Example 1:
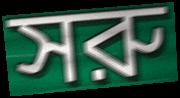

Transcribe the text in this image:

সৰু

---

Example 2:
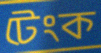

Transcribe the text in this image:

টেংক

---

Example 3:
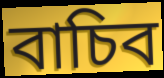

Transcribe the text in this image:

বাচিব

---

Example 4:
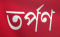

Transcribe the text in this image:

তৰ্পণ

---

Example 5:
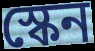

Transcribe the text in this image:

স্কেন